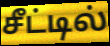
சீட்டில்